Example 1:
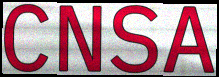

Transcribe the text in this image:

CNSA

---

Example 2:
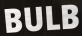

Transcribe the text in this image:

BULB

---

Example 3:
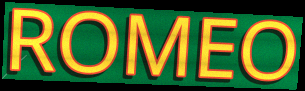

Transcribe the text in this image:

ROMEO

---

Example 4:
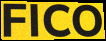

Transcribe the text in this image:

FICO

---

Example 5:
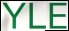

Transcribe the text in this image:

YLE